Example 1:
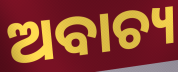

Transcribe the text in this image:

ଅବାଚ୍ୟ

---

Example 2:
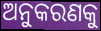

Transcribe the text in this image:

ଅନୁକରଣକୁ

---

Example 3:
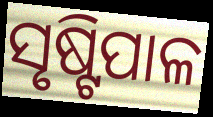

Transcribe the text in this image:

ସୃଷ୍ଟିପାଳ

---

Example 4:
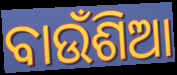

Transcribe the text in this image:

ବାଉଁଶିଆ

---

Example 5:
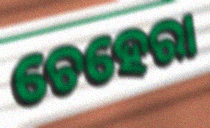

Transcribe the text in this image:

ଚେହେରା